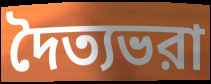
দৈত্যভরা